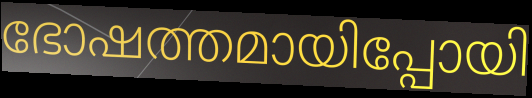
ഭോഷത്തമായിപ്പോയി